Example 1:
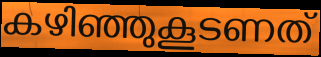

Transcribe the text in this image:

കഴിഞ്ഞുകൂടണത്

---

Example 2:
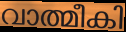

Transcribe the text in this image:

വാത്മീകി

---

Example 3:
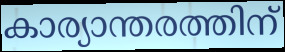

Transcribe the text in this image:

കാര്യാന്തരത്തിന്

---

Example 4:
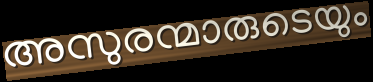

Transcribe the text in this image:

അസുരന്മാരുടെയും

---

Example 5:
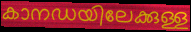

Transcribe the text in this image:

കാനഡയിലേക്കുള്ള